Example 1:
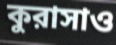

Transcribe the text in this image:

কুরাসাও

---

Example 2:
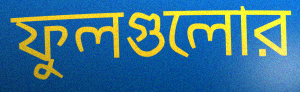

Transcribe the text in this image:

ফুলগুলোর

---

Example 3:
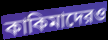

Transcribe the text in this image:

কাকিমাদেরও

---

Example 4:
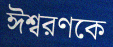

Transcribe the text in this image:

ঈশ্বরণকে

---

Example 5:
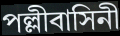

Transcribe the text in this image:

পল্লীবাসিনী